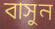
বাসুন